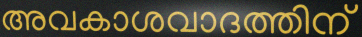
അവകാശവാദത്തിന്